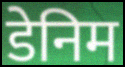
डेनिम